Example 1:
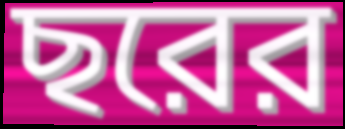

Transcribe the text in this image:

ছরের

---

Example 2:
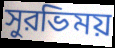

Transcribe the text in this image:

সুরভিময়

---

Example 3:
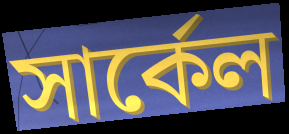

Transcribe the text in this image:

সার্কেল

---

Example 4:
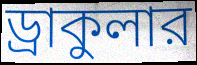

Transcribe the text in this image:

ড্রাকুলার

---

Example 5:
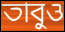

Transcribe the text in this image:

তাবুও